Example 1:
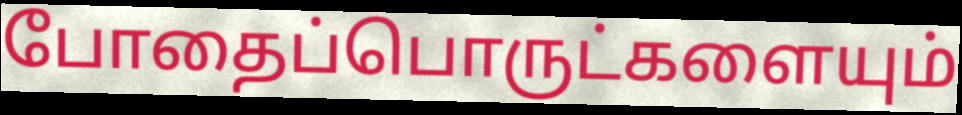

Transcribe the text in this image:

போதைப்பொருட்களையும்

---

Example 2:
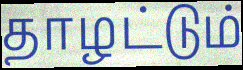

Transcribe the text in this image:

தாழட்டும்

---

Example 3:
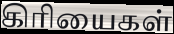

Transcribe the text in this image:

கிரியைகள்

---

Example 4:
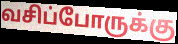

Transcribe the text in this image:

வசிப்போருக்கு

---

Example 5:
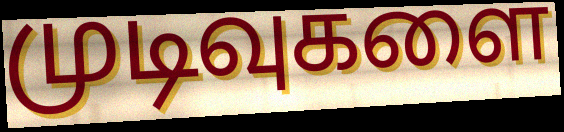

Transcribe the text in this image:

முடிவுகளை